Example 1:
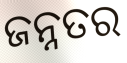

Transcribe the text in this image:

ଜନ୍ନତର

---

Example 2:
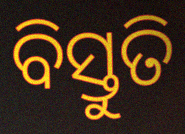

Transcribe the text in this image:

ବିସ୍ତୁତି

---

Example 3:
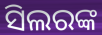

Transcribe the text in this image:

ସିଲରଙ୍କ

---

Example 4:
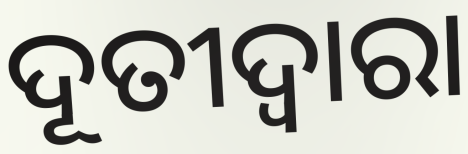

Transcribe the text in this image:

ଦୂତୀଦ୍ୱାରା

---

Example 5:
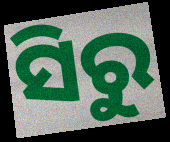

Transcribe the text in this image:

ସିରୁ